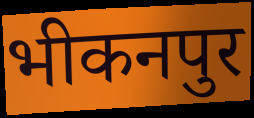
भीकनपुर